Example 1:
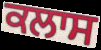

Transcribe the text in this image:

ਕਲਾਸ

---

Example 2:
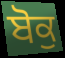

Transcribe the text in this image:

ਬੋਕੁ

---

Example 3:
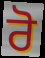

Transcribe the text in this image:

ਰੋ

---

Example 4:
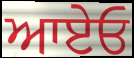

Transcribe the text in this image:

ਆਏਓ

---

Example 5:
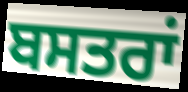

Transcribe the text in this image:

ਬਸਤਰਾਂ